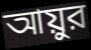
আয়ুর